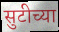
सुटीच्या